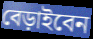
বেড়াইবেন